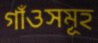
গাঁওসমূহ